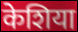
केशिया